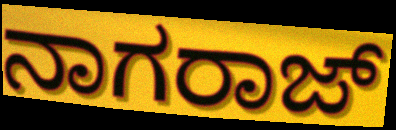
ನಾಗರಾಜ್